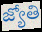
జ్యోతి